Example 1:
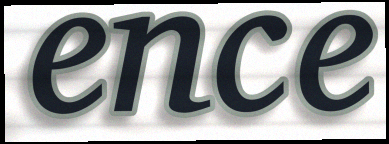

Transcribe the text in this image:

ence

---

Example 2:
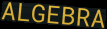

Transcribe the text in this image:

ALGEBRA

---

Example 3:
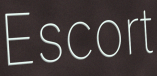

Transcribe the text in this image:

Escort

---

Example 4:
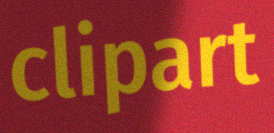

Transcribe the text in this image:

clipart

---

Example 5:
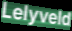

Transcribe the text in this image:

Lelyveld